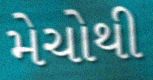
મેચોથી